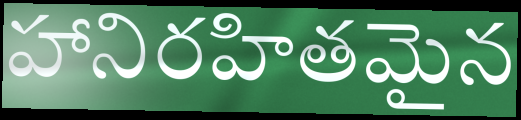
హానిరహితమైన